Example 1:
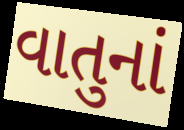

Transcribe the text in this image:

વાતુનાં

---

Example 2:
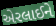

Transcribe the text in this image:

એરલાઈને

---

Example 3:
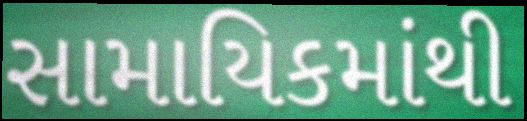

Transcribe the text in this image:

સામાયિકમાંથી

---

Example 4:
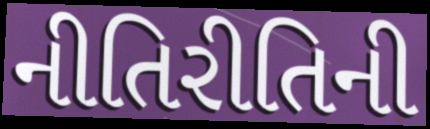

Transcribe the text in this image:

નીતિરીતિની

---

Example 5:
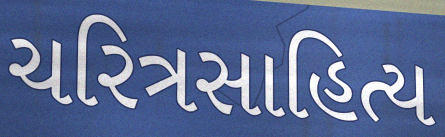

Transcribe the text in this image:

ચરિત્રસાહિત્ય